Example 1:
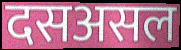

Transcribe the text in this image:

दसअसल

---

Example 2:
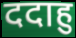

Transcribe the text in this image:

ददाहु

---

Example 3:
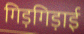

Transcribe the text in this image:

गिड़गिड़ाई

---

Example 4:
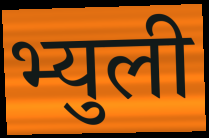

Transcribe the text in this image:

भ्युली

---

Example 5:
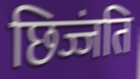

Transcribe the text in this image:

छिज्जंति